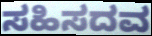
ಸಹಿಸದವ